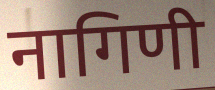
नागिणी